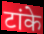
टांके